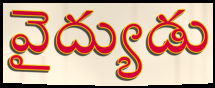
వైద్యుడు